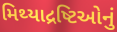
મિથ્યાદ્રષ્ટિઓનું